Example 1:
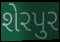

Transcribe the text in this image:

શેરપુર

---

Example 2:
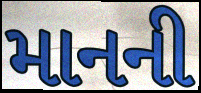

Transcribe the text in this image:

માનની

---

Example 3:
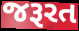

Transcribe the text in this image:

જરૂરત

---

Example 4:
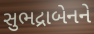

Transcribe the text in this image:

સુભદ્રાબેનને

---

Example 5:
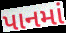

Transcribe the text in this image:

પાનમાં